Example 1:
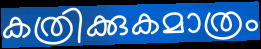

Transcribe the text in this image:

കത്രിക്കുകമാത്രം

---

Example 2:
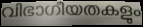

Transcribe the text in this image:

വിഭാഗീയതകളും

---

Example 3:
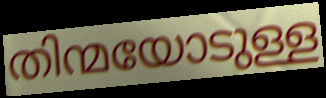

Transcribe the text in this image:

തിന്മയോടുള്ള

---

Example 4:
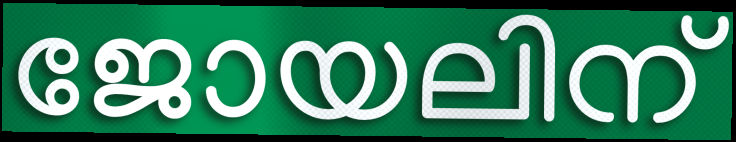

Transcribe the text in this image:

ജോയലിന്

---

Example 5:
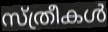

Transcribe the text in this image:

സ്ത്രീകൾ